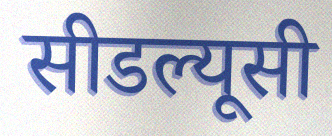
सीडल्यूसी